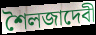
শৈলজাদেবী